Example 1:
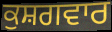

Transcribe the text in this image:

ਕੁਸ਼ਗਵਾਰ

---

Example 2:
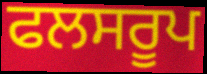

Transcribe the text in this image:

ਫਲਸਰੂਪ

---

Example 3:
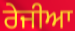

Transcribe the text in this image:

ਰੇਜੀਆ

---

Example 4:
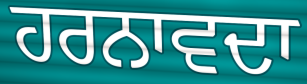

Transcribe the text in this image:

ਹਰਨਾਵਦਾ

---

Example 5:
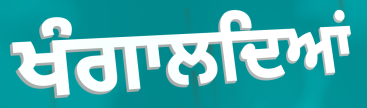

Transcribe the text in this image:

ਖੰਗਾਲਦਿਆਂ